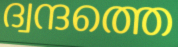
ദ്വന്ദത്തെ